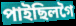
পাইছিলগৈ